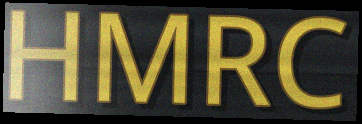
HMRC